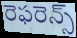
రెఫరెన్స్